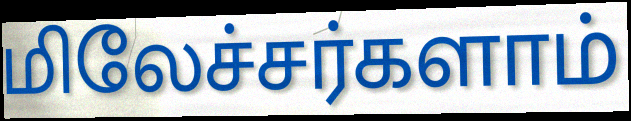
மிலேச்சர்களாம்